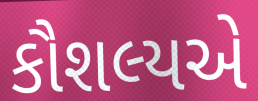
કૌશલ્યએ